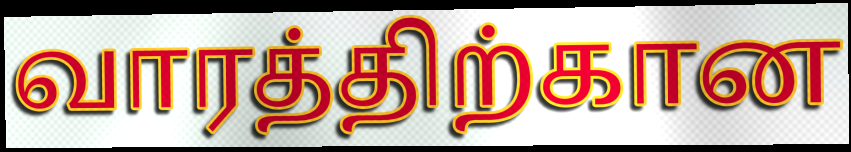
வாரத்திற்கான